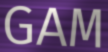
GAM